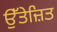
ਉੱਤੇਜ਼ਿਤ